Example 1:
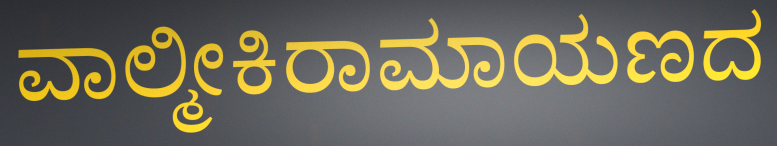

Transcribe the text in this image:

ವಾಲ್ಮೀಕಿರಾಮಾಯಣದ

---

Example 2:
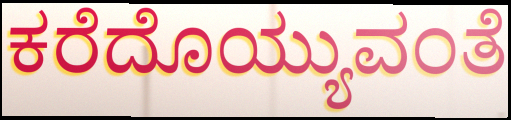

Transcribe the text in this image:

ಕರೆದೊಯ್ಯುವಂತೆ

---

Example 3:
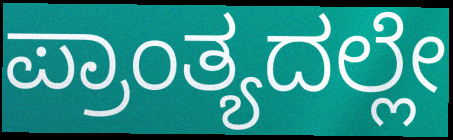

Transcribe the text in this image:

ಪ್ರಾಂತ್ಯದಲ್ಲೇ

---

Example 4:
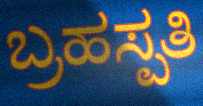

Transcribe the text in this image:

ಬ್ರಹಸ್ಪತಿ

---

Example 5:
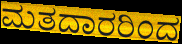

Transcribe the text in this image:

ಮತದಾರರಿಂದ